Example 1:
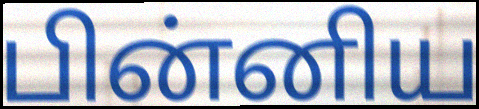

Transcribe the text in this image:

பின்னிய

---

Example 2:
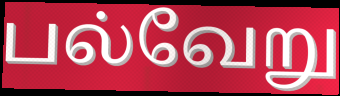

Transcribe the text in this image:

பல்வேறு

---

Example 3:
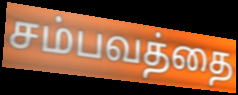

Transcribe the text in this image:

சம்பவத்தை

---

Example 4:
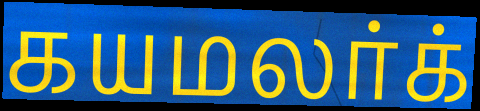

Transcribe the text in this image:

கயமலர்க்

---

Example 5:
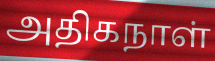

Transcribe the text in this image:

அதிகநாள்